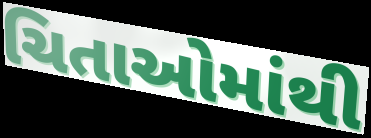
ચિતાઓમાંથી